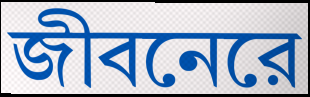
জীবনেরে